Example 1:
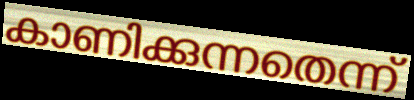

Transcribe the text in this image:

കാണിക്കുന്നതെന്ന്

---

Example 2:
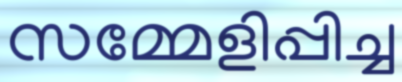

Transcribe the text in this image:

സമ്മേളിപ്പിച്ച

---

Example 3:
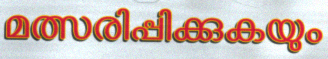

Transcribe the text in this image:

മത്സരിപ്പിക്കുകയും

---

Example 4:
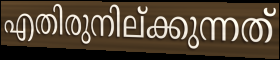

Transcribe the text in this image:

എതിരുനില്ക്കുന്നത്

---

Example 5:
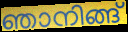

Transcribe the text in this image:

ഞാനിങ്ങ്